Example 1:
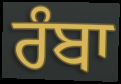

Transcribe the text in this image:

ਰੰਬਾ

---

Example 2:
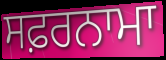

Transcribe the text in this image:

ਸਫ਼ਰਨਾਮਾ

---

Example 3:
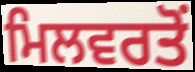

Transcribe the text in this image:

ਮਿਲਵਰਤੋਂ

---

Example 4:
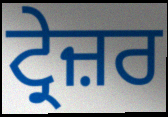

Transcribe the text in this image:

ਟ੍ਰੇਜ਼ਰ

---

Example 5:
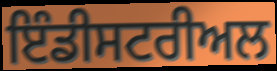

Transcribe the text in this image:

ਇੰਡੀਸਟਰੀਅਲ